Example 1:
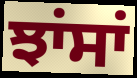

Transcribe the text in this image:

ਝਾਂਸਾਂ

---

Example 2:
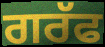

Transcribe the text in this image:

ਗਰੱਫ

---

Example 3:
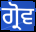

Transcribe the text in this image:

ਗ੍ਰੋਵ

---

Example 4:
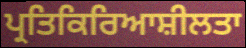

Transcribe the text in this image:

ਪ੍ਰਤਿਕਿਰਿਆਸ਼ੀਲਤਾ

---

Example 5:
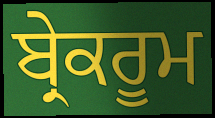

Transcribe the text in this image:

ਬ੍ਰੇਕਰੂਮ